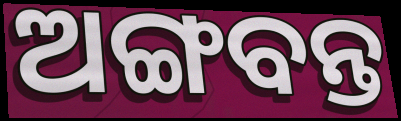
ଅଙ୍ଗବନ୍ତ